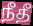
நீதீ